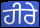
ਹੀਰੇ